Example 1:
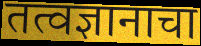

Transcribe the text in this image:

तत्वज्ञानाचा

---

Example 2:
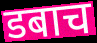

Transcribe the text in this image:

डबाच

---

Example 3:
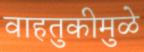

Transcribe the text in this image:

वाहतुकीमुळे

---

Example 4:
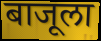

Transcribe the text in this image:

बाजूला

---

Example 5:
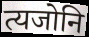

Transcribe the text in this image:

त्यजोनि